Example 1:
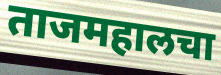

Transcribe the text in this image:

ताजमहालचा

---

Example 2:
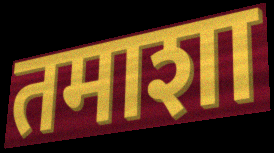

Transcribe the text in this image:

तमाशा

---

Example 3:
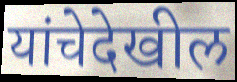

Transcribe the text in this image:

यांचेदेखील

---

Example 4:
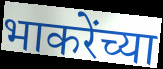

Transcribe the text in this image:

भाकरेंच्या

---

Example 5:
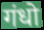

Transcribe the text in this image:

गंधो